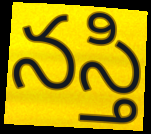
నస్తి